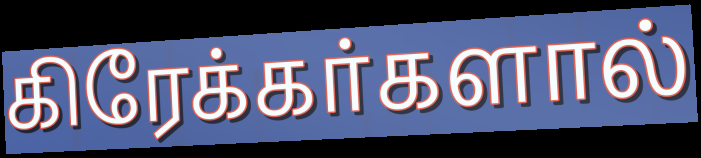
கிரேக்கர்களால்